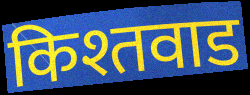
किश्तवाड